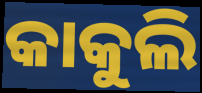
କାକୁଲି